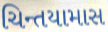
ચિન્તયામાસ